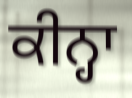
ਕੀਨ੍ਹ੍ਹਾ